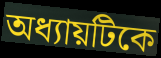
অধ্যায়টিকে